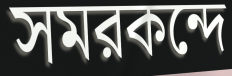
সমরকন্দে